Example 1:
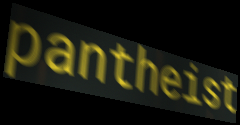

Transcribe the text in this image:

pantheist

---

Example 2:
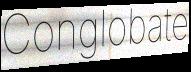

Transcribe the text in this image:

Conglobate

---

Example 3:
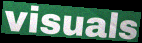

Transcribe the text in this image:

visuals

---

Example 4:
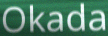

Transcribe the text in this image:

Okada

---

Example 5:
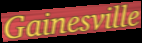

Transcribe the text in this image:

Gainesville